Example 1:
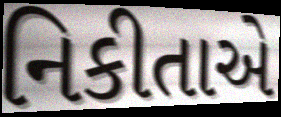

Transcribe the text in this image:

નિકીતાએ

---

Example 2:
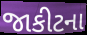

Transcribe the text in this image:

જાકીટના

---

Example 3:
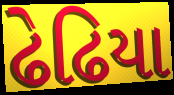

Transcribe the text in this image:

ઢેઢિયા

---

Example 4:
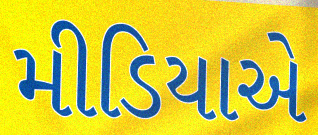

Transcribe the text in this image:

મીડિયાએ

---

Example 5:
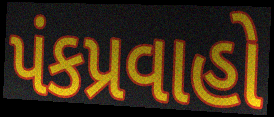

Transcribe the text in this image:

પંકપ્રવાહો